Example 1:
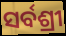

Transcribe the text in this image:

ସର୍ବଶ୍ରୀ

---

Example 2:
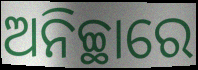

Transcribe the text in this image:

ଅନିଚ୍ଛାରେ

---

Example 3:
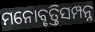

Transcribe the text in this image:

ମନୋବୃତ୍ତିସମ୍ପନ୍ନ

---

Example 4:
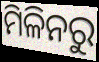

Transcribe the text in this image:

ମିଳିନରୁ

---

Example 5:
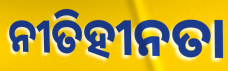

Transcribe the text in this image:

ନୀତିହୀନତା